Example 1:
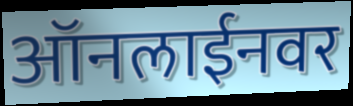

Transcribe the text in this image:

ऑनलाईनवर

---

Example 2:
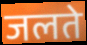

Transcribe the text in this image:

जलते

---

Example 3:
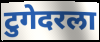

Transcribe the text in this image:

टुगेदरला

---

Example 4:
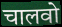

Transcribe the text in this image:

चालवो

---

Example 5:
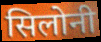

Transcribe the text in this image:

सिलोनी